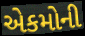
એકમોની